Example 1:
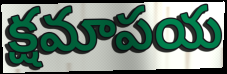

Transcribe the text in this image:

క్షమాపయ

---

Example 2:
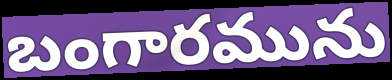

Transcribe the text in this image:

బంగారమును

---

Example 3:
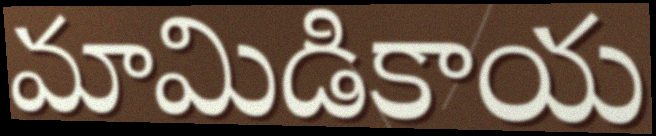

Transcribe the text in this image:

మామిడికాయ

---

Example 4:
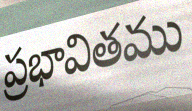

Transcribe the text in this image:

ప్రభావితము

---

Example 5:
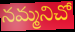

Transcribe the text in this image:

నమ్మనిచో